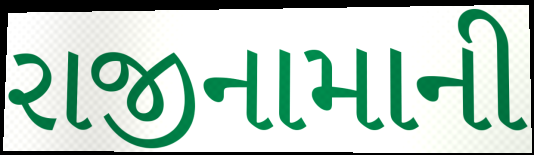
રાજીનામાની